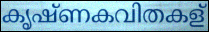
കൃഷ്ണകവിതകള്